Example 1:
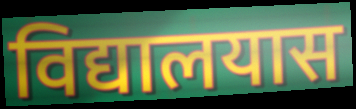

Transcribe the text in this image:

विद्यालयास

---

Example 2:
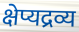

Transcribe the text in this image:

क्षेप्यद्रव्य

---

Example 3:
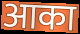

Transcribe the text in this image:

आका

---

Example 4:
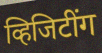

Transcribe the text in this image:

व्हिजिटींग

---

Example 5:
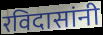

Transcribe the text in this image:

रविदासांनी